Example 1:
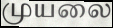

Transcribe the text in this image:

முயலை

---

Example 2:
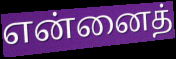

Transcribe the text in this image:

என்னைத்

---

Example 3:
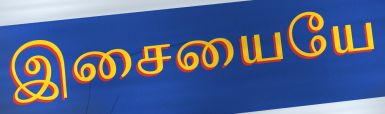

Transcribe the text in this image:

இசையையே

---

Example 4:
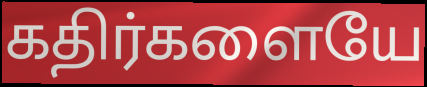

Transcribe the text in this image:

கதிர்களையே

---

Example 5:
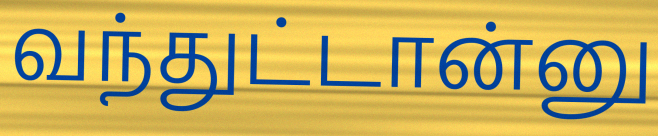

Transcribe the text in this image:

வந்துட்டான்னு